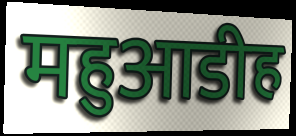
महुआडीह